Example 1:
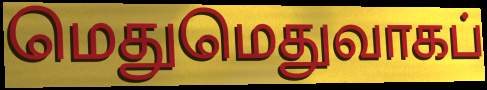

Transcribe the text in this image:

மெதுமெதுவாகப்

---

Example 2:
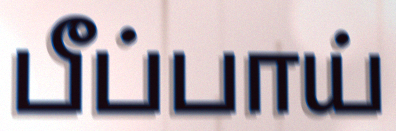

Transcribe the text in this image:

பீப்பாய்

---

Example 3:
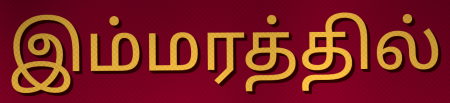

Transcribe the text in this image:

இம்மரத்தில்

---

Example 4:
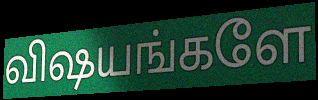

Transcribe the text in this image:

விஷயங்களே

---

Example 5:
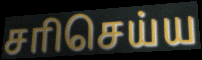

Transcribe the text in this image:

சரிசெய்ய